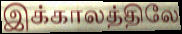
இக்காலத்திலே